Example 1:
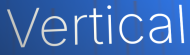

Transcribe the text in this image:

Vertical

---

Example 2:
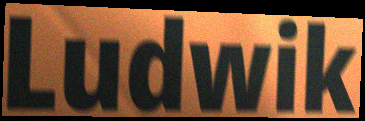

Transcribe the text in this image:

Ludwik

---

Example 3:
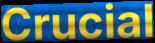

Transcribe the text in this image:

Crucial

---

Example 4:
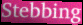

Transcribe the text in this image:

Stebbing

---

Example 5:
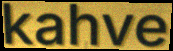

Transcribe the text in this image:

kahve